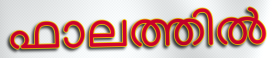
ഫാലത്തിൽ